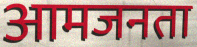
आमजनता